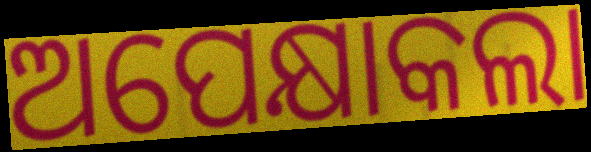
ଅପେକ୍ଷାକଲା